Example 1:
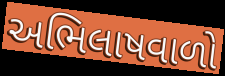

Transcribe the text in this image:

અભિલાષવાળો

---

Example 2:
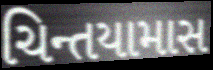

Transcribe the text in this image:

ચિન્તયામાસ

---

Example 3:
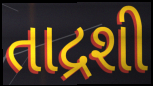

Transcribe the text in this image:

તાદ્રશી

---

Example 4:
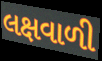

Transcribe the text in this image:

લક્ષવાળી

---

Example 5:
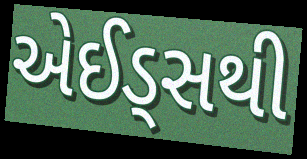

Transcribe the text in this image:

એઈડ્સથી